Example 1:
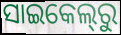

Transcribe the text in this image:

ସାଇକେଲ୍‌ରୁ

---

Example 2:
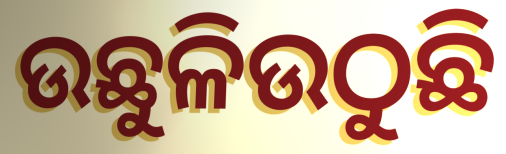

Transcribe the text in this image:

ଉଛୁଳିଉଠୁଛି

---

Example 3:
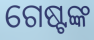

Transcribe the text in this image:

ଗେଷ୍ଟଙ୍କ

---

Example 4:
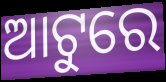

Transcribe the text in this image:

ଆଟୁରେ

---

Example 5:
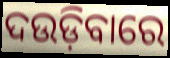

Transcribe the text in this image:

ଦଉଡ଼ିବାରେ